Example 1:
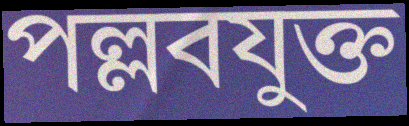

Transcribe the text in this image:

পল্লবযুক্ত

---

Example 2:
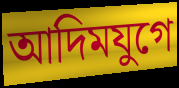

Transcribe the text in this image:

আদিমযুগে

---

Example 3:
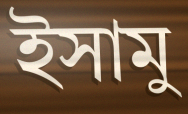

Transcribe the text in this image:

ইসামু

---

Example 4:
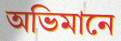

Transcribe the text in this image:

অভিমানে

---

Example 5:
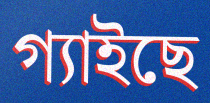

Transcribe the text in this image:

গ্যাইছে